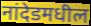
नांदेडमधील